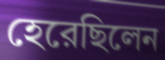
হেরেছিলেন